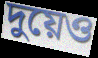
দুয়েও